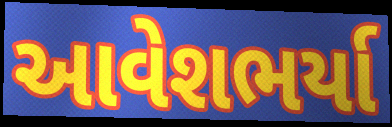
આવેશભર્યા